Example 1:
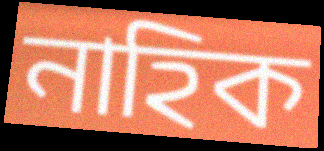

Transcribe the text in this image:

নাহিক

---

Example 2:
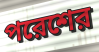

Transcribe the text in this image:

পরেশের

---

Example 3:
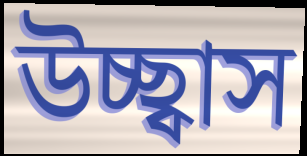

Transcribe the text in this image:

উচ্ছ্বাস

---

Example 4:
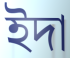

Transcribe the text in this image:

ইদা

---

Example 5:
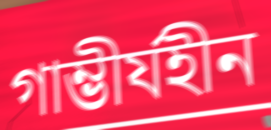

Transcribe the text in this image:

গাম্ভীর্যহীন